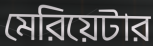
মেরিয়েটার